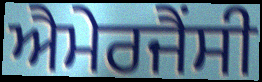
ਐਮੇਰਜੈਂਸੀ